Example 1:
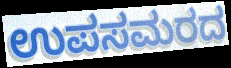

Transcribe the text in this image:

ಉಪಸಮರದ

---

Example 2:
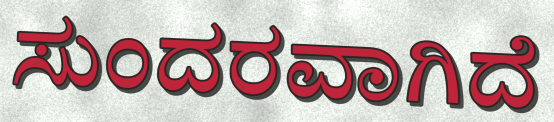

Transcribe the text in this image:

ಸುಂದರವಾಗಿದೆ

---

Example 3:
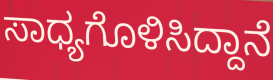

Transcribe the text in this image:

ಸಾಧ್ಯಗೊಳಿಸಿದ್ದಾನೆ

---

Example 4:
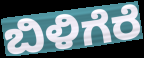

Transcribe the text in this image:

ಬಿಳಿಗೆರೆ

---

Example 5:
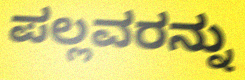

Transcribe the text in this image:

ಪಲ್ಲವರನ್ನು